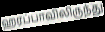
ஹரப்பாவிலிருந்து